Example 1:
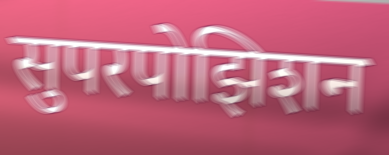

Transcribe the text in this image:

सुपरपोझिशन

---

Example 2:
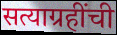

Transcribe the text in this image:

सत्याग्रहींची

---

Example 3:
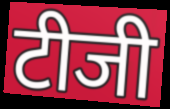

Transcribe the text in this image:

टीजी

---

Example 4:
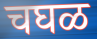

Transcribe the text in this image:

चघळ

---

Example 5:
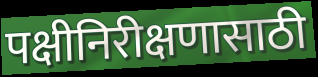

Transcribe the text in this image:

पक्षीनिरीक्षणासाठी